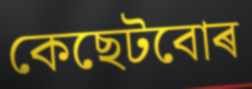
কেছেটবোৰ